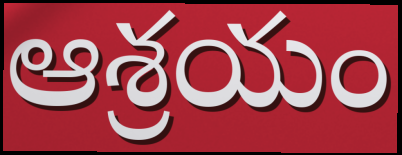
ఆశ్రయం